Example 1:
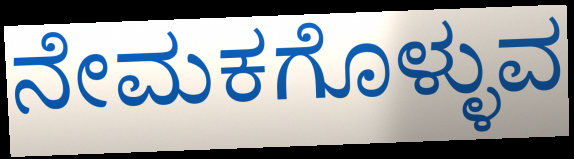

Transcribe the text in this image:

ನೇಮಕಗೊಳ್ಳುವ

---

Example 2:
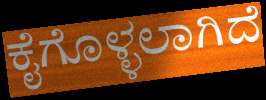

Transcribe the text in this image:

ಕೈಗೊಳ್ಳಲಾಗಿದೆ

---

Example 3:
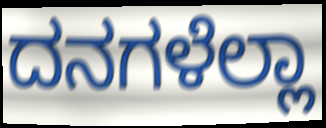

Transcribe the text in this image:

ದನಗಳೆಲ್ಲಾ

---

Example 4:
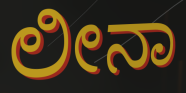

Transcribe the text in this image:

ಲೀನಾ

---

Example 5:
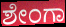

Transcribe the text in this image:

ಶೇಂಗಾ